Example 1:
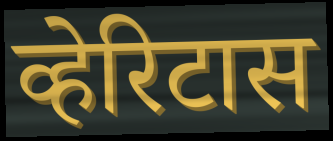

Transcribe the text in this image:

व्हेरिटास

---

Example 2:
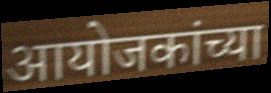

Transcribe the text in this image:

आयोजकांच्या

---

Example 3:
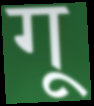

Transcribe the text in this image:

गू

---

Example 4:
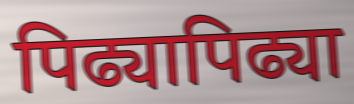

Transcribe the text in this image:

पिढ्यापिढ्या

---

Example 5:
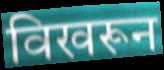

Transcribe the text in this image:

विखरून